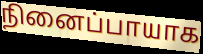
நினைப்பாயாக